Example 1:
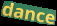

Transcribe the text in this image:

dance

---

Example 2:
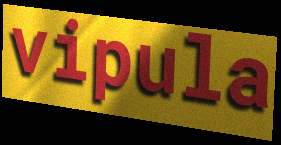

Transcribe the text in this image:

vipula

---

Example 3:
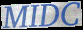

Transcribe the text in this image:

MIDC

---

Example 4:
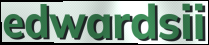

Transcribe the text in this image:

edwardsii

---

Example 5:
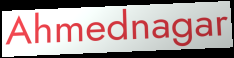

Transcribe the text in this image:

Ahmednagar